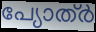
പ്യോത്ർ